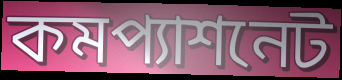
কমপ্যাশনেট